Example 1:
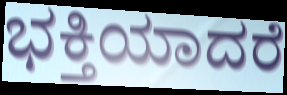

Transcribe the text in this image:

ಭಕ್ತಿಯಾದರೆ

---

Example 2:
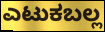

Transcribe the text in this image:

ಎಟುಕಬಲ್ಲ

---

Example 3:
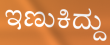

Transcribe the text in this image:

ಇಣುಕಿದ್ದು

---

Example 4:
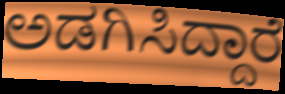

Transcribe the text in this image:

ಅಡಗಿಸಿದ್ದಾರೆ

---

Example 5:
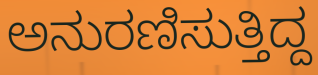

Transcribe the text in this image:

ಅನುರಣಿಸುತ್ತಿದ್ದ